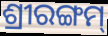
ଶ୍ରୀରଙ୍ଗମ୍